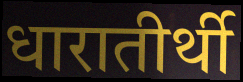
धारातीर्थी